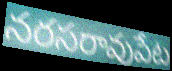
నరసరావుపేట